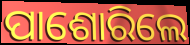
ପାଶୋରିଲେ